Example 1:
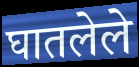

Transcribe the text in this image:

घातलेले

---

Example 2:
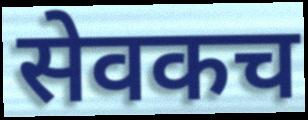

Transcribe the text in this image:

सेवकच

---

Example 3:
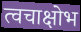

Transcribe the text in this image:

त्वचाक्षोभ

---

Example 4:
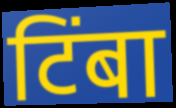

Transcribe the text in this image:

टिंबा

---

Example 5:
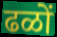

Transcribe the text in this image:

ढळों